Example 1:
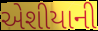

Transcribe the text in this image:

એશીયાની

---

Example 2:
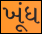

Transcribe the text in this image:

ખૂંધ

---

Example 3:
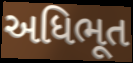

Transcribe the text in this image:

અધિભૂત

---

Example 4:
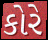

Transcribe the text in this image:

કોરે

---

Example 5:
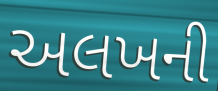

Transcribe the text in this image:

અલખની